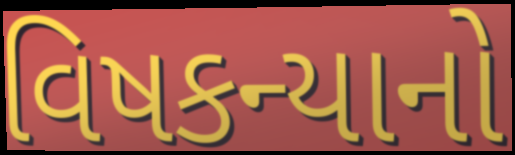
વિષકન્યાનો